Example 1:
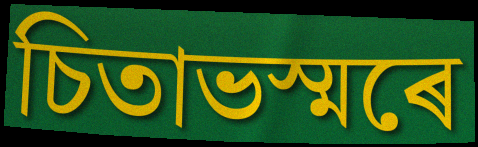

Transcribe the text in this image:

চিতাভস্মৰে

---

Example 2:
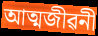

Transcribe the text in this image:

আত্মজীৱনী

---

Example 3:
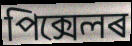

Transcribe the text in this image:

পিক্সেলৰ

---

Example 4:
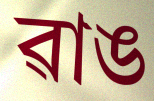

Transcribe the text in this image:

ৱাঙ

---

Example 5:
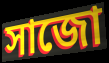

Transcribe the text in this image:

সাজো